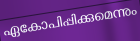
ഏകോപിപ്പിക്കുമെന്നും